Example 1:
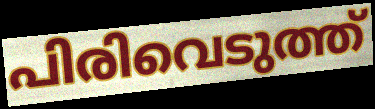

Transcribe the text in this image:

പിരിവെടുത്ത്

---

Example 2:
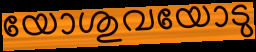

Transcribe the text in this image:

യോശുവയോടു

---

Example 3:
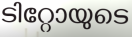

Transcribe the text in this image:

ടിറ്റോയുടെ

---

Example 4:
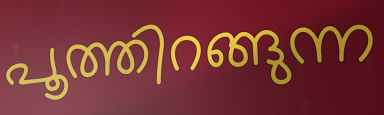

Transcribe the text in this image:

പൂത്തിറങ്ങുന്ന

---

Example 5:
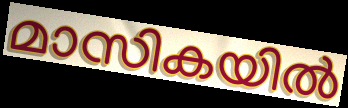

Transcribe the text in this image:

മാസികയിൽ